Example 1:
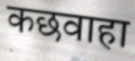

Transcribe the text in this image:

कछवाहा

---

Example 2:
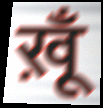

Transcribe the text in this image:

ख़ूँ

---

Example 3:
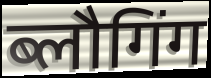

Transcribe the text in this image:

ब्लौगिंग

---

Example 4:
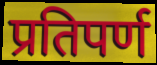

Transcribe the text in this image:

प्रतिपर्ण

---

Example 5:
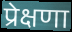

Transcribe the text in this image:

प्रेक्षणा